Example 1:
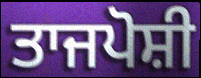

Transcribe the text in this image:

ਤਾਜਪੋਸ਼ੀ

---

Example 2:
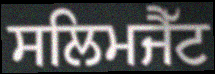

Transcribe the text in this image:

ਸਲਿਮਜੈੱਟ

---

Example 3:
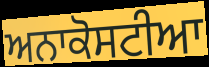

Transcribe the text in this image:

ਅਨਾਕੋਸਟੀਆ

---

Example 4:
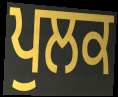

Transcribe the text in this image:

ਪੁਲਕ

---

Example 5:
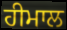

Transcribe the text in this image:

ਹੀਮਾਲ